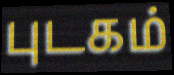
புடகம்